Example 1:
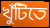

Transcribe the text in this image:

খুঁটিতে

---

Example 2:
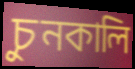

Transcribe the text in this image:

চুনকালি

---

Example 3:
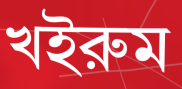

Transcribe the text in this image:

খইরুম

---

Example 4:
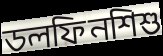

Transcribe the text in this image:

ডলফিনশিশু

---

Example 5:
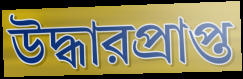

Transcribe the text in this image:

উদ্ধারপ্রাপ্ত